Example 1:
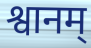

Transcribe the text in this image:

श्वानम्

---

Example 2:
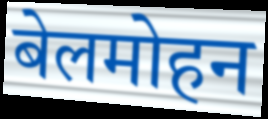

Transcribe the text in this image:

बेलमोहन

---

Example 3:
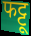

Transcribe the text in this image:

फट्टू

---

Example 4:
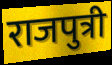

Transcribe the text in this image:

राजपुत्री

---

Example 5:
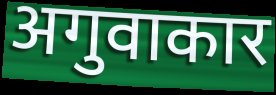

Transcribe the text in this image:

अगुवाकार